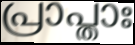
പ്രാപ്താഃ